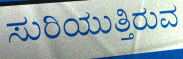
ಸುರಿಯುತ್ತಿರುವ